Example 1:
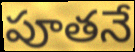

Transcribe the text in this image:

పూతనే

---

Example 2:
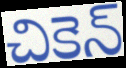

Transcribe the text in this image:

చికెన్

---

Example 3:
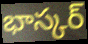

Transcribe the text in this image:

భాస్కర్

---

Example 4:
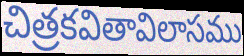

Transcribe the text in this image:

చిత్రకవితావిలాసము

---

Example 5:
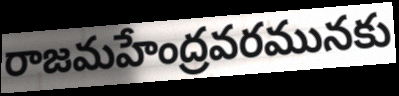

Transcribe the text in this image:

రాజమహేంద్రవరమునకు